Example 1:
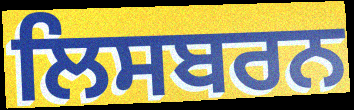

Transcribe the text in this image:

ਲਿਸਬਰਨ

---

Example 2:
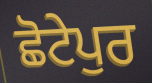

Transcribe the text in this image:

ਛੋਟੇਪੁਰ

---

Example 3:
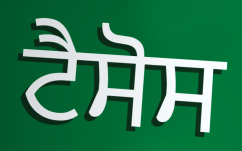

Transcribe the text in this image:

ਟੈਸੋਸ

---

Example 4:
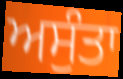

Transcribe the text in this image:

ਅਸੁੰਤਾ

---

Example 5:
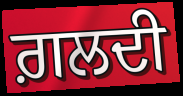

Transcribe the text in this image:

ਗ਼ਲਦੀ